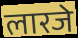
लारजे